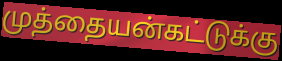
முத்தையன்கட்டுக்கு